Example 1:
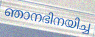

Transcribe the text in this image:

ഞാനഭിനയിച്ച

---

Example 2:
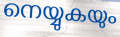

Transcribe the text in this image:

നെയ്യുകയും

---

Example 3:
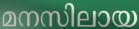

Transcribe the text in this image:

മനസിലായ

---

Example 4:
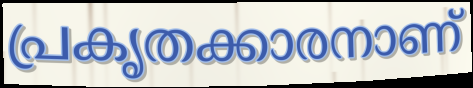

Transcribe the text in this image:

പ്രകൃതക്കാരനാണ്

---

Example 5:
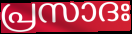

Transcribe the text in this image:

പ്രസാദഃ